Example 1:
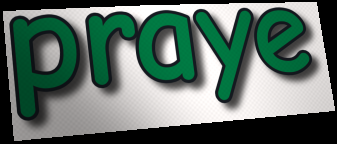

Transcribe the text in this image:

praye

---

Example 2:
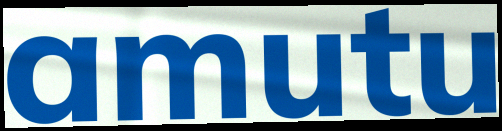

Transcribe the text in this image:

amutu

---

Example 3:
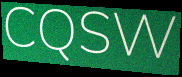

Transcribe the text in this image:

CQSW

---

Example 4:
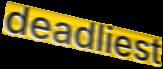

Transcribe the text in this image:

deadliest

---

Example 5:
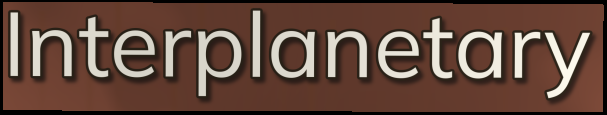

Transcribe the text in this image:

Interplanetary